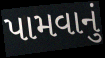
પામવાનું